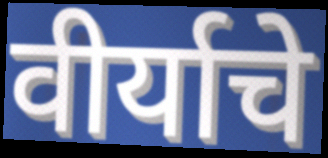
वीर्याचे